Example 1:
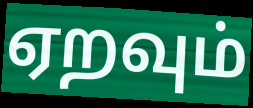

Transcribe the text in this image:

ஏறவும்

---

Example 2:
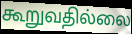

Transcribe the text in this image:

கூறுவதில்லை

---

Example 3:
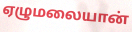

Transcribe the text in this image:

ஏழுமலையான்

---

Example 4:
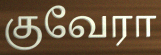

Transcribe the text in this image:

குவேரா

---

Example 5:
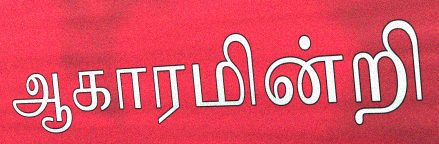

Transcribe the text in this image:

ஆகாரமின்றி